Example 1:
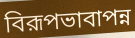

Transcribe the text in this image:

বিরূপভাবাপন্ন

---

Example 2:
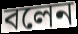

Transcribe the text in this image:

বলেন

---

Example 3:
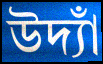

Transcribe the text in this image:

উদ্যাঁ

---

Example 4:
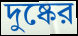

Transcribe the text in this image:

দুষ্কের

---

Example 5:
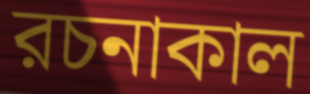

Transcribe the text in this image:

রচনাকাল